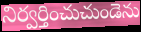
నిర్వర్తించుచుండెను